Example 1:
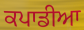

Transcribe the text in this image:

ਕਪਾਡੀਆ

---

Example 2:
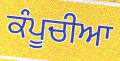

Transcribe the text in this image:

ਕੰਪੂਚੀਆ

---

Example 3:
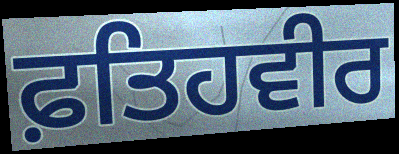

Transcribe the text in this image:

ਫ਼ਤਿਹਵੀਰ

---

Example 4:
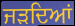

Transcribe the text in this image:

ਜੜਦਿਆਂ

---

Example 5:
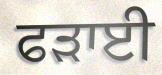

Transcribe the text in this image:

ਫੜਾਈ